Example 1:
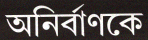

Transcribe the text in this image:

অনির্বাণকে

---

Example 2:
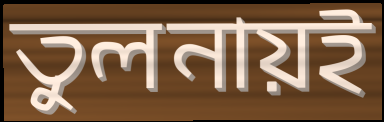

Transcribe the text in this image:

তুলনায়ই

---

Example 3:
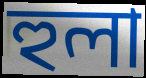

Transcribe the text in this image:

হুলা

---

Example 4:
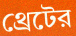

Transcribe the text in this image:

থ্রেটের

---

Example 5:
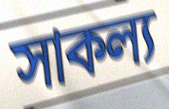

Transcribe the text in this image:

সাকল্য